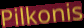
Pilkonis